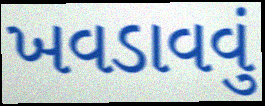
ખવડાવવું